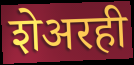
शेअरही